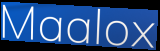
Maalox